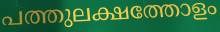
പത്തുലക്ഷത്തോളം